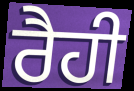
ਰੈਹੀ